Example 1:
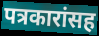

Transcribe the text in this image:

पत्रकारांसह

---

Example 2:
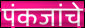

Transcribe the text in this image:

पंकजांचे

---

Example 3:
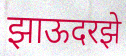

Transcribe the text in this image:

झाऊदरझे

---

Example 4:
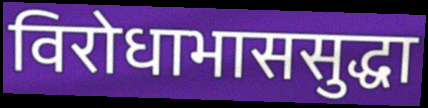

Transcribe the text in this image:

विरोधाभाससुद्धा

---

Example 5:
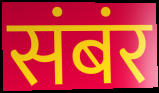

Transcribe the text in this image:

संबंर